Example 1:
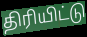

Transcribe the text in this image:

திரியிட்டு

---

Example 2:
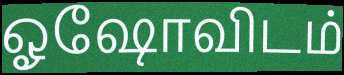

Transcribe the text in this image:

ஓஷோவிடம்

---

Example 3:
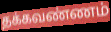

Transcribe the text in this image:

தக்கவண்ணம்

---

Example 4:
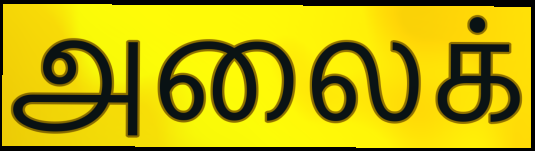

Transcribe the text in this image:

அலைக்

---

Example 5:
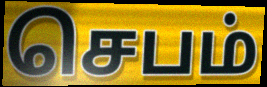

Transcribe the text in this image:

செபம்